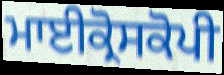
ਮਾਈਕ੍ਰੋਸਕੋਪੀ